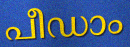
പീഡാം